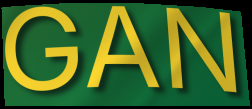
GAN